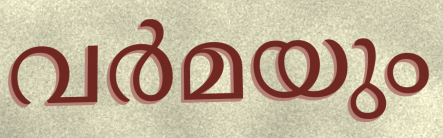
വർമയും